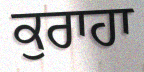
ਕੁਰਾਹਾ